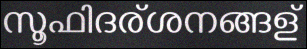
സൂഫിദര്ശനങ്ങള്